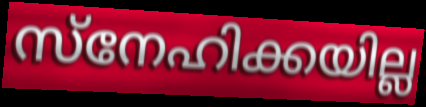
സ്നേഹിക്കയില്ല